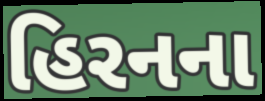
હિરનના